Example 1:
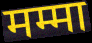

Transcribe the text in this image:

मम्मा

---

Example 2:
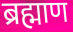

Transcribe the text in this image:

ब्रह्माण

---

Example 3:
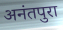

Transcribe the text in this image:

अनंतपुरा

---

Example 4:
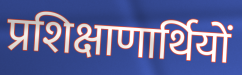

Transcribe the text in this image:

प्रशिक्षाणार्थियों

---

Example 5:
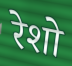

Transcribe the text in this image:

रेशो